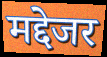
मद्देजर